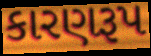
કારણરૂપ